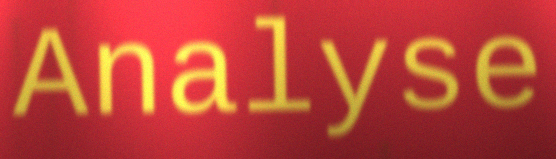
Analyse